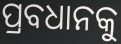
ପ୍ରବଧାନକୁ